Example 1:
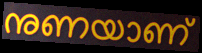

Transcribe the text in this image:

നുണയാണ്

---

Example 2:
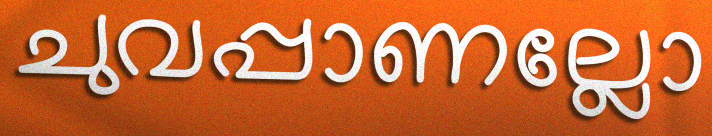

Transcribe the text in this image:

ചുവപ്പാണല്ലോ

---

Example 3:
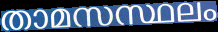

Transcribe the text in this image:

താമസസ്ഥലം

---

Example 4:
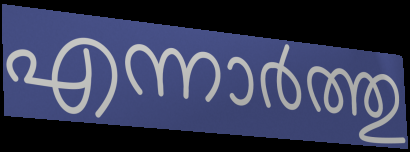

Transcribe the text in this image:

എന്നാർത്തു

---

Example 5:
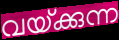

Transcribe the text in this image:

വയ്‌ക്കുന്ന